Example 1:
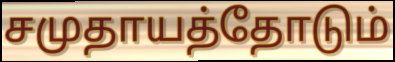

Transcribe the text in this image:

சமுதாயத்தோடும்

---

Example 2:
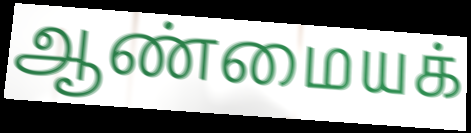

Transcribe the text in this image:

ஆண்மையக்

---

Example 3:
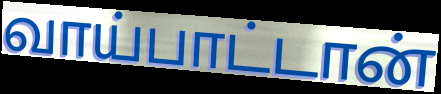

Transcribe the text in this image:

வாய்பாட்டான்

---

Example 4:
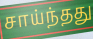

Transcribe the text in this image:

சாய்ந்தது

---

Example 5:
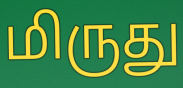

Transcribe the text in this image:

மிருது